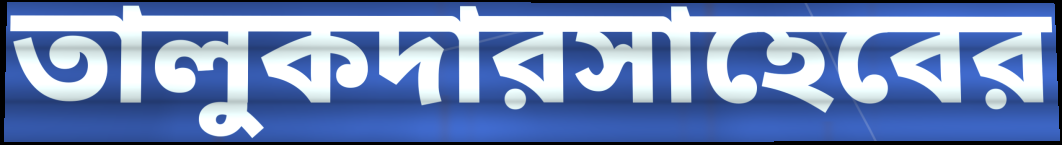
তালুকদারসাহেবের